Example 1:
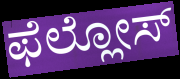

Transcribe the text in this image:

ಫೆಲ್ಲೋಸ್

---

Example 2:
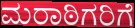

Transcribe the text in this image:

ಮರಾಠಿಗರಿಗೆ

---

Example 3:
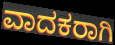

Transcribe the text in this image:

ವಾದಕರಾಗಿ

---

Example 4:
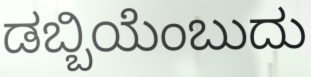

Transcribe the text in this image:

ಡಬ್ಬಿಯೆಂಬುದು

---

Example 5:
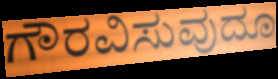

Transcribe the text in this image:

ಗೌರವಿಸುವುದೂ